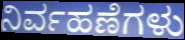
ನಿರ್ವಹಣೆಗಳು